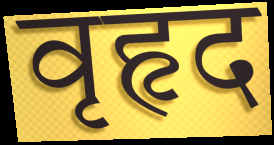
वृहृद